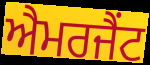
ਐਮਰਜੈਂਟ